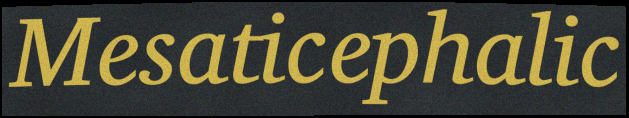
Mesaticephalic